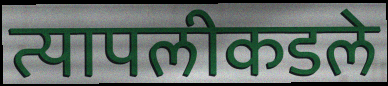
त्यापलीकडले